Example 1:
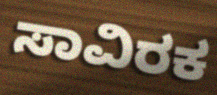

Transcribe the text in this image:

ಸಾವಿರಕ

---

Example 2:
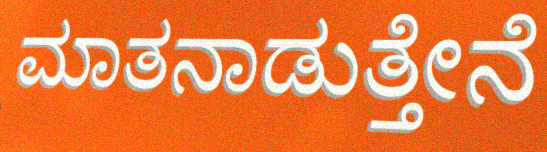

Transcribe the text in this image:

ಮಾತನಾಡುತ್ತೇನೆ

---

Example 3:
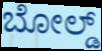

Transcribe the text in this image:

ಬೋಲ್ಡ್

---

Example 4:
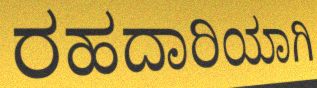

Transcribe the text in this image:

ರಹದಾರಿಯಾಗಿ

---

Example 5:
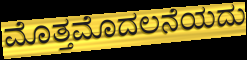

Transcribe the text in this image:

ಮೊತ್ತಮೊದಲನೆಯದು